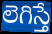
లెగిస్తే